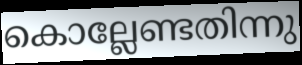
കൊല്ലേണ്ടതിന്നു